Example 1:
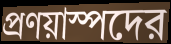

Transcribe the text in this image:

প্রণয়াস্পদের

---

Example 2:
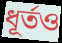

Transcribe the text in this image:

ধূর্তও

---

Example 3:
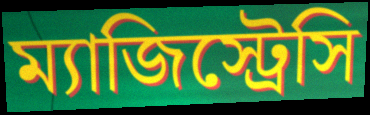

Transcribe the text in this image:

ম্যাজিস্ট্রেসি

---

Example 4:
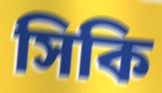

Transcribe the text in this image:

সিকি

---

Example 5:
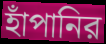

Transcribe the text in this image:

হাঁপানির